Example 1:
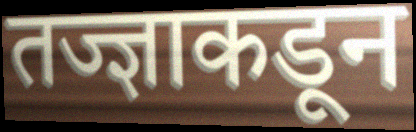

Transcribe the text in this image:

तज्ज्ञाकडून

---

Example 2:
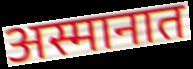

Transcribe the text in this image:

अस्मानात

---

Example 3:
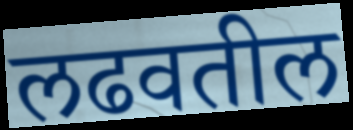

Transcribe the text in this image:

लढवतील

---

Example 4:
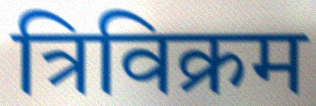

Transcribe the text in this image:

त्रिविक्रम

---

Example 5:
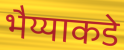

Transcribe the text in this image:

भैय्याकडे